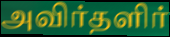
அவிர்தளிர்